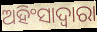
ଅହିଂସାଦ୍ୱାରା